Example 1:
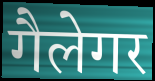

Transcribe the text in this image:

गैलेगर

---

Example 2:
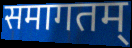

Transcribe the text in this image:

समागतम्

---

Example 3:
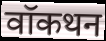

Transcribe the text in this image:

वॉकथन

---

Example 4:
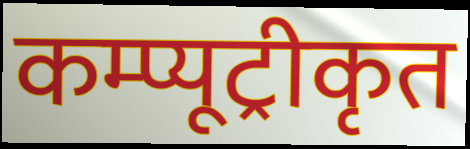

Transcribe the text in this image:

कम्प्यूट्रीकृत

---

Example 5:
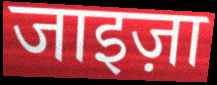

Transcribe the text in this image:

जाइज़ा